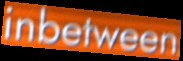
inbetween